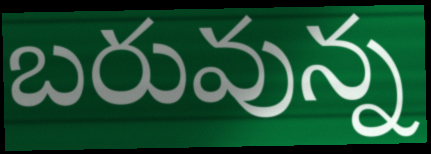
బరువున్న